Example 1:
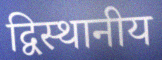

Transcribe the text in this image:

द्विस्थानीय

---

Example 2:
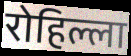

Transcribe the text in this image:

रोहिल्ला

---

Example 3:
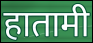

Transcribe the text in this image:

हातामी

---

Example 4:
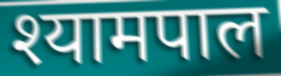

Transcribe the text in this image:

श्यामपाल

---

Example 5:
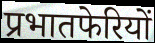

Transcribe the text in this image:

प्रभातफेरियों